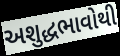
અશુદ્ધભાવોથી